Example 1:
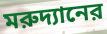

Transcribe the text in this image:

মরুদ্যানের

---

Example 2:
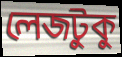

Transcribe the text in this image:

লেজটুকু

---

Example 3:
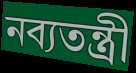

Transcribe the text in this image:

নব্যতন্ত্রী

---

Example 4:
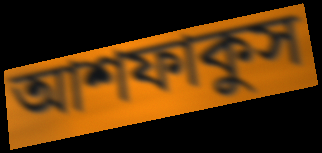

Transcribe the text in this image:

আশফাকুস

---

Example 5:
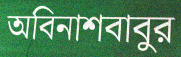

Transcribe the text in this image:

অবিনাশবাবুর